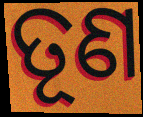
ତୂଣ